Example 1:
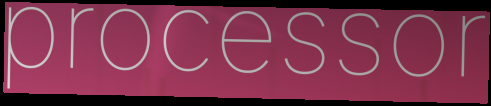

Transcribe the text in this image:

processor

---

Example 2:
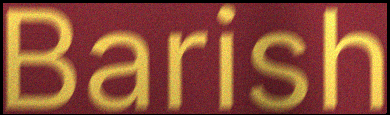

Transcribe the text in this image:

Barish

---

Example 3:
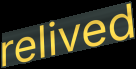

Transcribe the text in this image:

relived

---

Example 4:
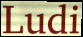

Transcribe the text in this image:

Ludi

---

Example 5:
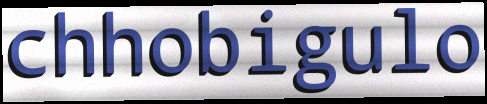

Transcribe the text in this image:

chhobigulo